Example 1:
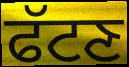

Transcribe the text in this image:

ਫੱਟਣ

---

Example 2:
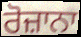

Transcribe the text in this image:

ਰੋਜ਼ਾਨਾ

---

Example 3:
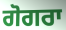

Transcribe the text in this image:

ਗੋਗਰਾ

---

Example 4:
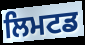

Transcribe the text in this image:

ਲਿਮਟਡ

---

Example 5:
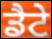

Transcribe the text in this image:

ਡੈਟੇ